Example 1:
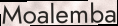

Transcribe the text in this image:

Moalemba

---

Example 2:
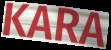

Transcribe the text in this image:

KARA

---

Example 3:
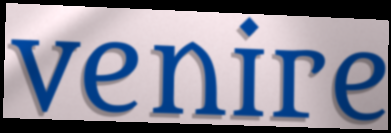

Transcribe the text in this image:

venire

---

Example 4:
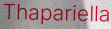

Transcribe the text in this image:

Thapariella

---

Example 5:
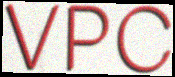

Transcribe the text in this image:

VPC